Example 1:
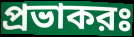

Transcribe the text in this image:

প্রভাকরঃ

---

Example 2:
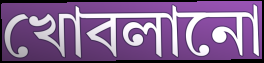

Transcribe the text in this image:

খোবলানো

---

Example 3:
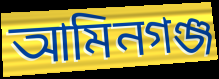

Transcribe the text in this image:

আমিনগঞ্জ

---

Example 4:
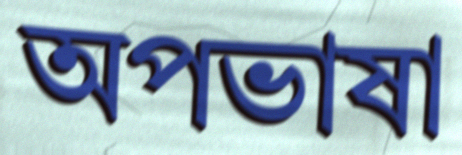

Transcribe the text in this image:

অপভাষা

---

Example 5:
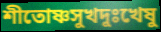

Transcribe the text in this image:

শীতোষ্ণসুখদুঃখেষু